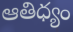
ఆతిధ్యం